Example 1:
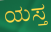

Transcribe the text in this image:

ಯಸ್ತ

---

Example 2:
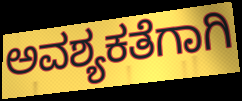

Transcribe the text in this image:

ಅವಶ್ಯಕತೆಗಾಗಿ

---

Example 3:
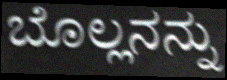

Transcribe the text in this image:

ಬೊಲ್ಲನನ್ನು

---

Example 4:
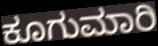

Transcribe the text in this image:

ಕೂಗುಮಾರಿ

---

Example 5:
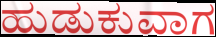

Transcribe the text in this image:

ಹುಡುಕುವಾಗ